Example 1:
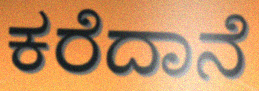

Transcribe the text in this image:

ಕರೆದಾನೆ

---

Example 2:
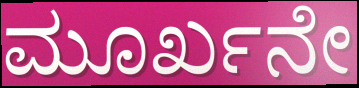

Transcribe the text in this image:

ಮೂರ್ಖನೇ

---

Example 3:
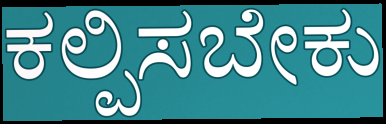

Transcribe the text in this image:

ಕಲ್ಪಿಸಬೇಕು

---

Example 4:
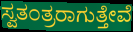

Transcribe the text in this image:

ಸ್ವತಂತ್ರರಾಗುತ್ತೇವೆ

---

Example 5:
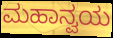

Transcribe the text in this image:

ಮಹಾನ್ವಯ